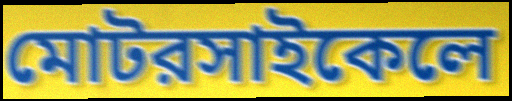
মোটরসাইকেলে